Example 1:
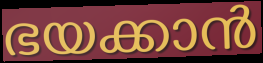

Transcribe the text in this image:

ഭയക്കാൻ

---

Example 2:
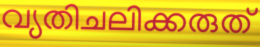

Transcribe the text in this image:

വ്യതിചലിക്കരുത്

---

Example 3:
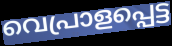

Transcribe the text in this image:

വെപ്രാളപ്പെട്ട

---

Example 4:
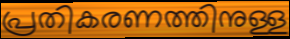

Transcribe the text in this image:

പ്രതികരണത്തിനുള്ള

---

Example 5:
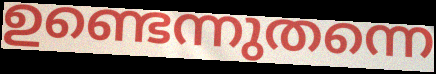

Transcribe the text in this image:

ഉണ്ടെന്നുതന്നെ